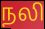
நலி